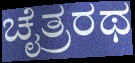
ಚೈತ್ರರಥ